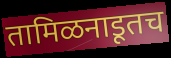
तामिळनाडूतच